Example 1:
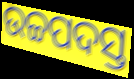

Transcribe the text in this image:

ଉଚ୍ଚପଦସ୍ତ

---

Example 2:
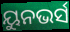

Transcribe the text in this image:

ୟୁନଭର୍ସ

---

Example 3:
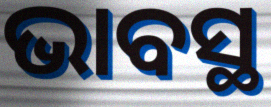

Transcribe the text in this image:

ଭାବସ୍ଥ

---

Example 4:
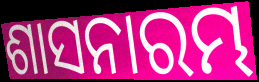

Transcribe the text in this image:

ଶାସନାରମ୍ଭ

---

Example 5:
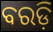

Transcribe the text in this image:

ବରଡ଼ି